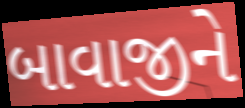
બાવાજીને